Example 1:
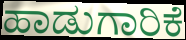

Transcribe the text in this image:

ಹಾಡುಗಾರಿಕೆ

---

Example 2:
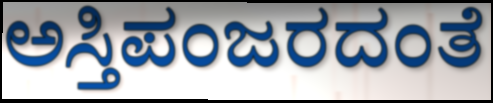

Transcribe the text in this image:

ಅಸ್ತಿಪಂಜರದಂತೆ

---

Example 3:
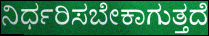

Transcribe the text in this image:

ನಿರ್ಧರಿಸಬೇಕಾಗುತ್ತದೆ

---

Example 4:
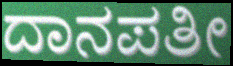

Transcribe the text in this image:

ದಾನಪತೀ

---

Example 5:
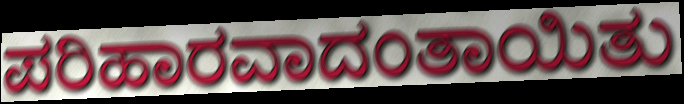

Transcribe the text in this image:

ಪರಿಹಾರವಾದಂತಾಯಿತು